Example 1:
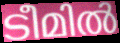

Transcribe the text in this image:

ടീമിൽ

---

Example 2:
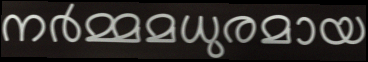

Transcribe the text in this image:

നർമ്മമധുരമായ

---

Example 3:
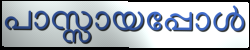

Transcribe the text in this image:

പാസ്സായപ്പോൾ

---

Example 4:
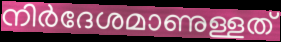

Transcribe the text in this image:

നിർദേശമാണുള്ളത്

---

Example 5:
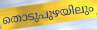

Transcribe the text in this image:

തൊടുപുഴയിലും